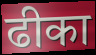
ढीका